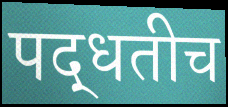
पद्धतीच